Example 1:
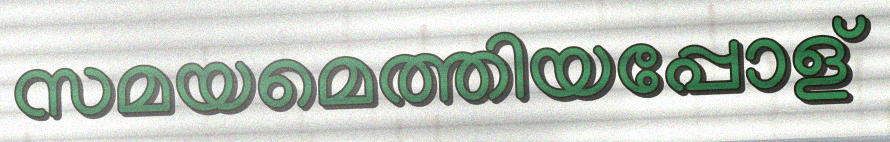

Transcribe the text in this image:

സമയമെത്തിയപ്പോള്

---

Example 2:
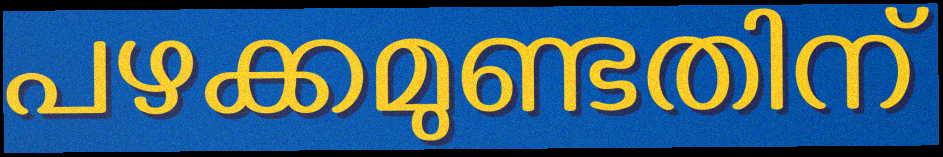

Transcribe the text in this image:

പഴക്കമുണ്ടതിന്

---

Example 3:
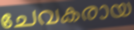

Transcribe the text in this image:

ചേവകരായ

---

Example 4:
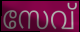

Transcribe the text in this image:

സേവ്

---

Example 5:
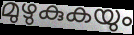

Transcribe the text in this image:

മുഴുകുകയും